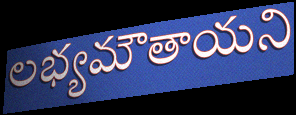
లభ్యమౌతాయని